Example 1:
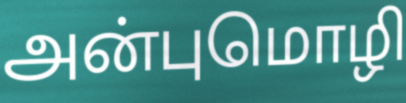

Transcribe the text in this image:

அன்புமொழி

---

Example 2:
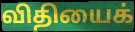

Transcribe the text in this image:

விதியைக்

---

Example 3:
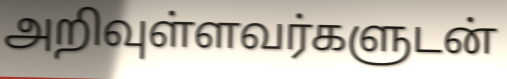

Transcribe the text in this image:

அறிவுள்ளவர்களுடன்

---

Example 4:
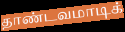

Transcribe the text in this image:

தாண்டவமாடிக்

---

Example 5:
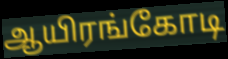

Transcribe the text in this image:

ஆயிரங்கோடி